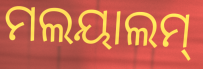
ମଲୟାଲମ୍